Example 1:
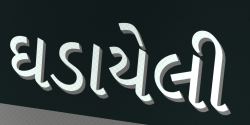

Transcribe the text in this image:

ઘડાયેલી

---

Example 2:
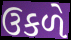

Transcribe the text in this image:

ઉકળે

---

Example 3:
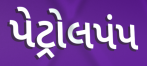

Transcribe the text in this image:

પેટ્રોલપંપ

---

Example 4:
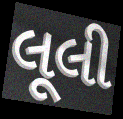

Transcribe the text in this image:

લૂલી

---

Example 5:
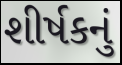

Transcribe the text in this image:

શીર્ષકનું